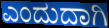
ಎಂದುದಾಗಿ